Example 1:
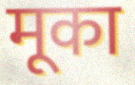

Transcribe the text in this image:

मूका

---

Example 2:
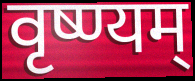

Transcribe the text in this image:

वृष्ण्यम्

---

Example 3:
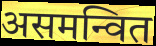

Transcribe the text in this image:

असमन्वित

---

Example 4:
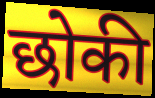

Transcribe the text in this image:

छोकी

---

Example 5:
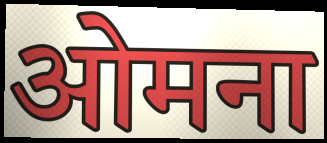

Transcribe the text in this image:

ओमना